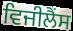
ਵਿਜੀਲੈਂਸ